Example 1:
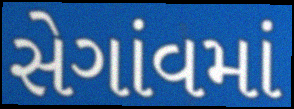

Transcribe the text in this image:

સેગાંવમાં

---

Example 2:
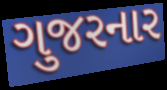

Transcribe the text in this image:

ગુજરનાર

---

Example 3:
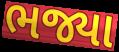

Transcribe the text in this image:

ભજ્યા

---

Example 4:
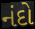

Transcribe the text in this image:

નંદો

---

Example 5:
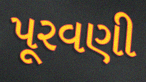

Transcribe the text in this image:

પૂરવણી